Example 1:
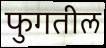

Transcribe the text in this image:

फुगतील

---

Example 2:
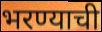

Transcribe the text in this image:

भरण्याची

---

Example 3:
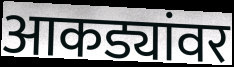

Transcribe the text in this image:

आकड्यांवर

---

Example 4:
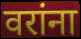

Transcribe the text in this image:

वरांना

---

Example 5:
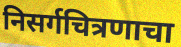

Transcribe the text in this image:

निसर्गचित्रणाचा